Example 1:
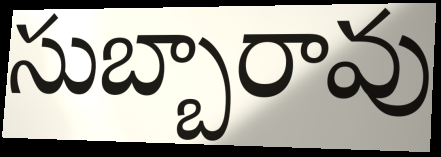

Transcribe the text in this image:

సుబ్బారావు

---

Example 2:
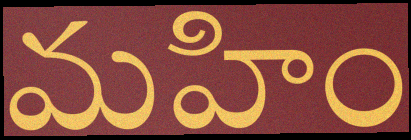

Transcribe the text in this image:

మహిం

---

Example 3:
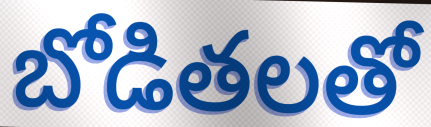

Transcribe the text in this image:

బోడితలతో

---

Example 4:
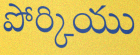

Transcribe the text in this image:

పోర్కియు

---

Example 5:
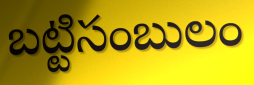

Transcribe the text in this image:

బట్టిసంబులం